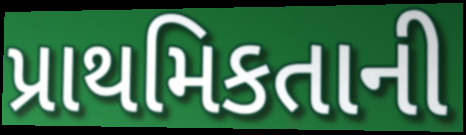
પ્રાથમિકતાની